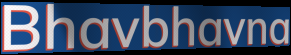
Bhavbhavna